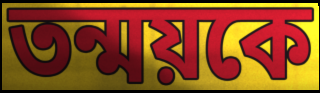
তন্ময়কে